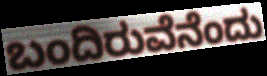
ಬಂದಿರುವೆನೆಂದು